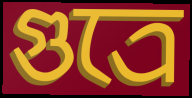
গুত্রে